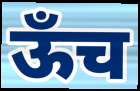
ऊँच